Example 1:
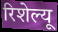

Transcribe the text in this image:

रिशेल्यू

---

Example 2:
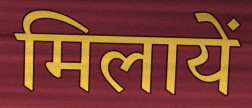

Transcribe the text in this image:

मिलायें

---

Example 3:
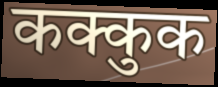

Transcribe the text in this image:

कक्कुक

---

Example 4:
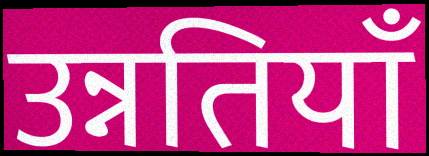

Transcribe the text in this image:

उन्नतियाँ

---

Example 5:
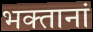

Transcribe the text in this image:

भक्तानां